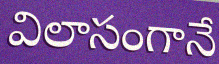
విలాసంగానే